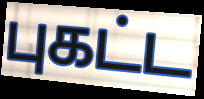
புகட்ட